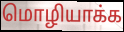
மொழியாக்க